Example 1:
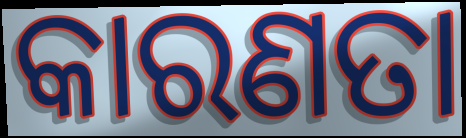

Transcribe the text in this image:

କାରଣତା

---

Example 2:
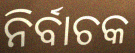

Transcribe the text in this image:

ନିର୍ବାଚକ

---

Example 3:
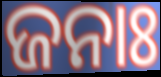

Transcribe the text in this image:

ଜନାଃ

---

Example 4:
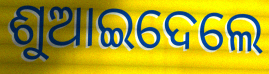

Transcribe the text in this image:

ଶୁଆଇଦେଲେ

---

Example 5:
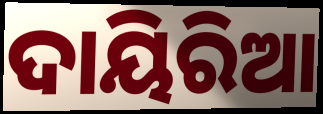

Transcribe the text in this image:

ଦାୟିରିଆ